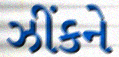
ઝીંકને